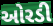
ઓરડી